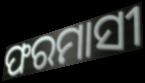
ଫରମାସୀ